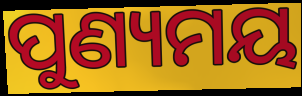
ପୁଣ୍ୟମୟ